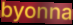
byonna